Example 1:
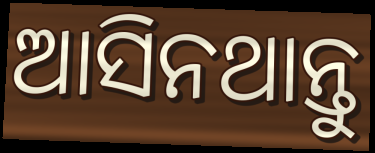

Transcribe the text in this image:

ଆସିନଥାନ୍ତୁ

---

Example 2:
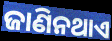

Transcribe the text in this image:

ଜାଣିନଥାଏ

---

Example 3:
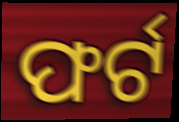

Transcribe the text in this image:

ଫର୍ଟ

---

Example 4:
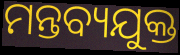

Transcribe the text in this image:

ମନ୍ତବ୍ୟଯୁକ୍ତ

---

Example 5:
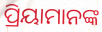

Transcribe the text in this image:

ପ୍ରିୟାମାନଙ୍କ